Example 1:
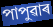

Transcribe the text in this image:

পাপুৱাৰ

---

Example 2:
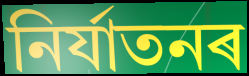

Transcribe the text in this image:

নিৰ্যাতনৰ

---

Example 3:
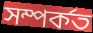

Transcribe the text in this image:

সম্পৰ্কত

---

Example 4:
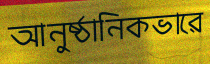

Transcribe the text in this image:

আনুষ্ঠানিকভাৱে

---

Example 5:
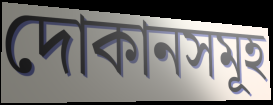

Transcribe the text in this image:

দোকানসমূহ